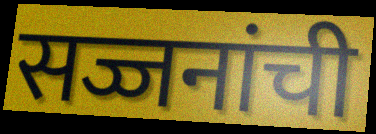
सज्जनांची